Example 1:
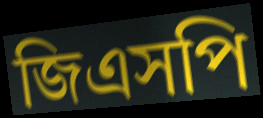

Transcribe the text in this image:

জিএসপি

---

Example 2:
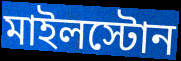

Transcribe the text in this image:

মাইলস্টোন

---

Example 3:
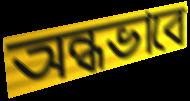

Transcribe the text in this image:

অন্ধভাবে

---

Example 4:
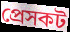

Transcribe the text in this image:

প্রেসকট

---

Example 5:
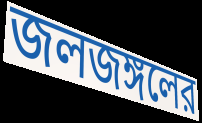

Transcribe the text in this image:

জলজঙ্গলের